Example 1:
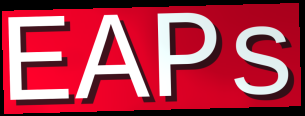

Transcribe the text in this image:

EAPs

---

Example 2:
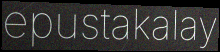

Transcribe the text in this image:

epustakalay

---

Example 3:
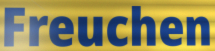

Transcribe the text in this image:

Freuchen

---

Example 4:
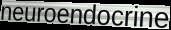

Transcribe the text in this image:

neuroendocrine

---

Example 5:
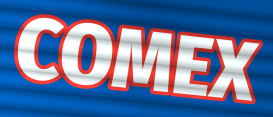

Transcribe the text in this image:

COMEX